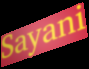
Sayani